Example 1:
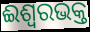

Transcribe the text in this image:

ଈଶ୍ୱରଭକ୍ତ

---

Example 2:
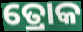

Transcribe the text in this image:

ତ୍ରୋକ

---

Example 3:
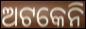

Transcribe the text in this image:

ଅଟକେନି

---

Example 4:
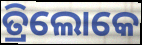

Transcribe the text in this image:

ତ୍ରିଲୋକେ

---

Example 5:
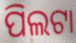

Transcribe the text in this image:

ପିଲଟା